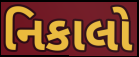
નિકાલો